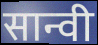
सान्वी